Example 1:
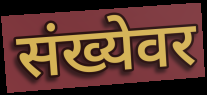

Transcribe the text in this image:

संख्येवर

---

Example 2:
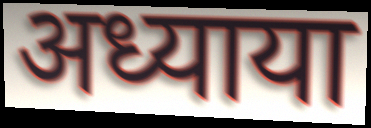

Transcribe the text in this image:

अध्याया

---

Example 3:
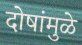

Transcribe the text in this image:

दोषांमुळे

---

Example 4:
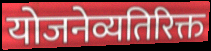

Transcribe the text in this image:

योजनेव्यतिरिक्त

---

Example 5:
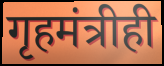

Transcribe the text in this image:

गृहमंत्रीही